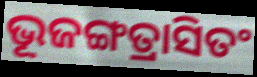
ଭୂଜଙ୍ଗତ୍ରାସିତଂ